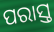
ପରାସ୍ତ